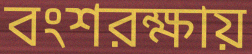
বংশরক্ষায়